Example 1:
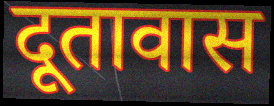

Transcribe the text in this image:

दूतावास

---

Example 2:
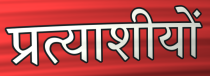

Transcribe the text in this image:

प्रत्याशीयों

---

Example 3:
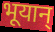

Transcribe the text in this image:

भूयान्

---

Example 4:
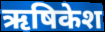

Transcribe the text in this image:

ऋषिकेश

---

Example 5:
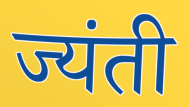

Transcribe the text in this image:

ज्यंती